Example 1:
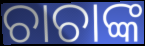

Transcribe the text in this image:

ଚାଚାଙ୍କ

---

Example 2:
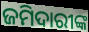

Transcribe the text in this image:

ଜମିଦାରୀଙ୍କ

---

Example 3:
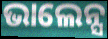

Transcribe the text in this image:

ଭାଲେନ୍ସ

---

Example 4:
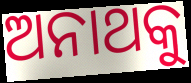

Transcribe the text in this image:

ଅନାଥକୁ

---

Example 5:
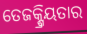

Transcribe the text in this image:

ତେଜକ୍ଶ୍ରିୟତାର